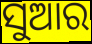
ସୁଆର